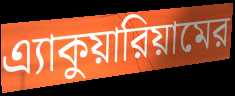
এ্যাকুয়ারিয়ামের